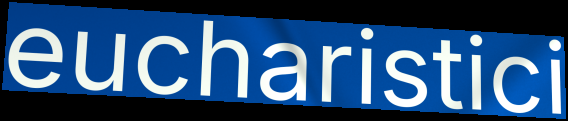
eucharistici